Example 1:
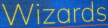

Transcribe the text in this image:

Wizards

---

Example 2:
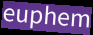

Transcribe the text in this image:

euphem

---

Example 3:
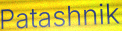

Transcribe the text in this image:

Patashnik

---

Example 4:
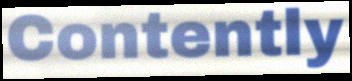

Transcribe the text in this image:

Contently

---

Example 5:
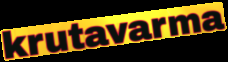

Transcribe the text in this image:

krutavarma